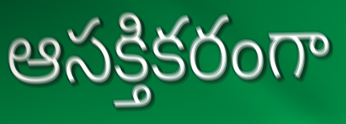
ఆసక్తికరంగా